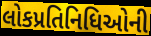
લોકપ્રતિનિધિઓની